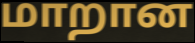
மாறான